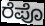
ರೆಪೊ